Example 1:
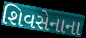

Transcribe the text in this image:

શિવસેનાના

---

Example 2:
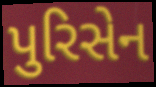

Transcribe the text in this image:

પુરિસેન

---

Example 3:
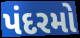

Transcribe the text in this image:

પંદરમો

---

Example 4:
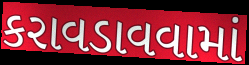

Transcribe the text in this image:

કરાવડાવવામાં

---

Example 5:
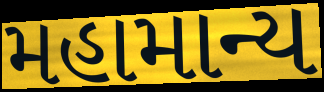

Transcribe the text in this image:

મહામાન્ય